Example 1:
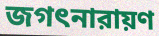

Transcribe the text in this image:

জগৎনারায়ণ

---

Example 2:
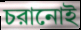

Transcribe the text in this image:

চরানোই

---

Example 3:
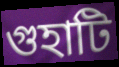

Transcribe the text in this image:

গুহাটি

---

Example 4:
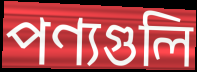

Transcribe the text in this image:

পণ্যগুলি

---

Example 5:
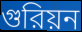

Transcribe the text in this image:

গুরিয়ন